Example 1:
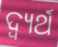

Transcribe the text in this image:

ଦ୍ୱ୍ୟର୍ଥ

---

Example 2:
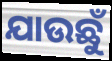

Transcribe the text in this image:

ଯାଉଛୁଁ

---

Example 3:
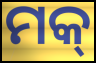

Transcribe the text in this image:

ମକ୍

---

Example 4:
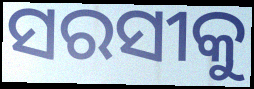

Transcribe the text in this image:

ସରସୀକୁ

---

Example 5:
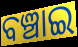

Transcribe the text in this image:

ବଞ୍ଚାଇ